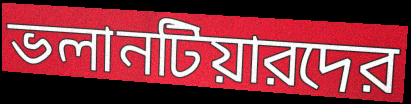
ভলানটিয়ারদের